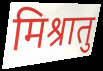
मिश्रातु